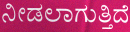
ನೀಡಲಾಗುತ್ತಿದೆ